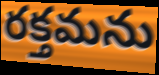
రక్తమను